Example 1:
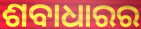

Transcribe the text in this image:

ଶବାଧାରର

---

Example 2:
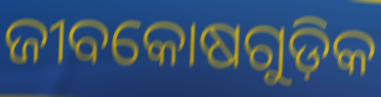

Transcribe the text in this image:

ଜୀବକୋଷଗୁଡ଼ିକ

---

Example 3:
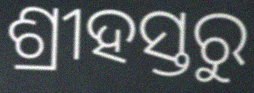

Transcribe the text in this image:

ଶ୍ରୀହସ୍ତରୁ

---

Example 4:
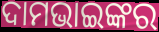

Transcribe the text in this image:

ଦାମଭାଇଙ୍କର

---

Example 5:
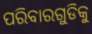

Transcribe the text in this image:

ପରିବାରଗୁଡିକୁ